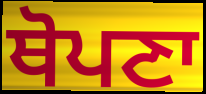
ਥੋਪਣਾ